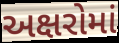
અક્ષરોમાં